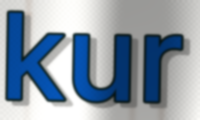
kur